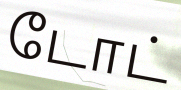
டோட்